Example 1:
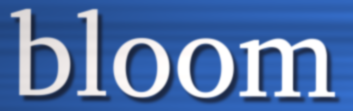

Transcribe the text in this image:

bloom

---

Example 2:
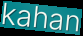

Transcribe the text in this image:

kahan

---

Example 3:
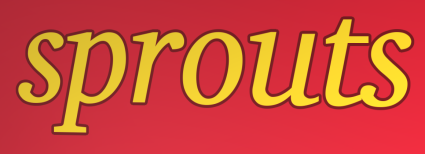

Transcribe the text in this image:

sprouts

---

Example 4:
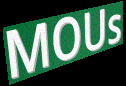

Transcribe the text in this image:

MOUs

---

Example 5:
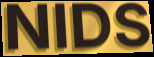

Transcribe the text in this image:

NIDS